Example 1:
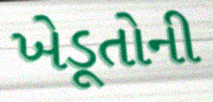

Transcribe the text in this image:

ખેડૂતોની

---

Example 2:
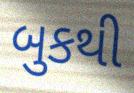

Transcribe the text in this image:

બુકથી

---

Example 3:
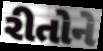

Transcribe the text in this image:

રીતોને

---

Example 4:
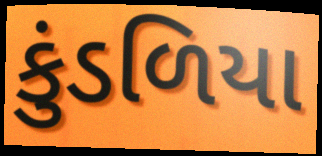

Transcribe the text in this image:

કુંડળિયા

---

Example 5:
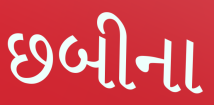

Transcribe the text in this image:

છબીના